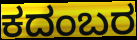
ಕದಂಬರ